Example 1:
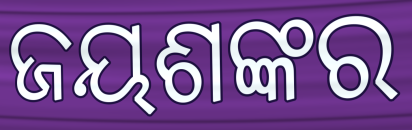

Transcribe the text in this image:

ଜୟଶଙ୍କର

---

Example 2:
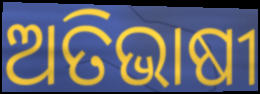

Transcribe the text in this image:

ଅତିଭାଷୀ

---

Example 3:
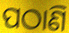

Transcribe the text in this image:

ପଠାଣି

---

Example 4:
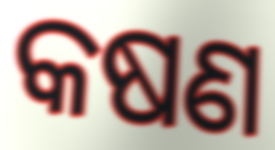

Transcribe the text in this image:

କଷଣ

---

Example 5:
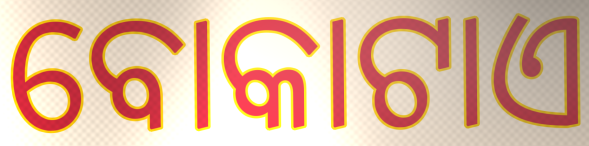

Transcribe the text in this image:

ବୋକାଟାଏ